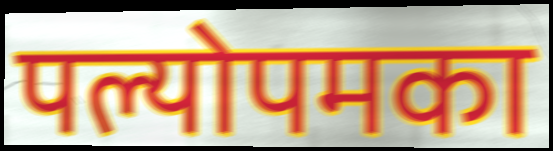
पल्योपमका